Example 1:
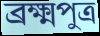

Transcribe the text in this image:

ব্ৰক্ষ্মপুত্ৰ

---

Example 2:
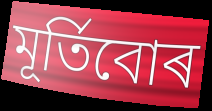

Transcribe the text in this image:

মূৰ্তিবোৰ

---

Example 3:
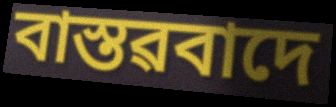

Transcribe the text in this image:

বাস্তৱবাদে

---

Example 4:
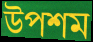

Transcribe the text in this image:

উপশম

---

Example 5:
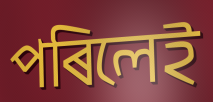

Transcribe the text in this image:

পৰিলেই